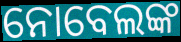
ନୋବେଲଙ୍କ